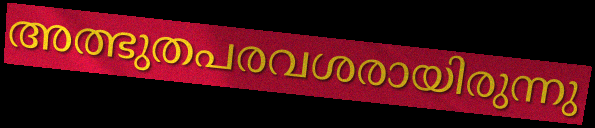
അത്ഭുതപരവശരായിരുന്നു